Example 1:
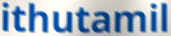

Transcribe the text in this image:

ithutamil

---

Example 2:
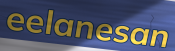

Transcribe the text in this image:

eelanesan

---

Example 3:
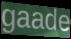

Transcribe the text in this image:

gaade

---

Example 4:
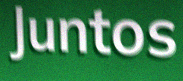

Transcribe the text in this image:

Juntos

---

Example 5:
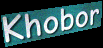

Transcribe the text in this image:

Khobor